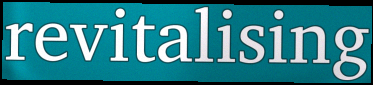
revitalising